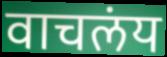
वाचलंय